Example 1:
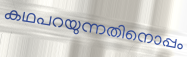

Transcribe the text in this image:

കഥപറയുന്നതിനൊപ്പം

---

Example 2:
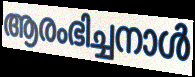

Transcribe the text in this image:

ആരംഭിച്ചനാൾ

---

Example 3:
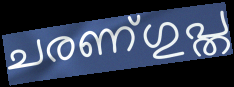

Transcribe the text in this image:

ചരണ്ഗുപ്ത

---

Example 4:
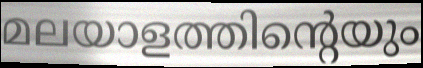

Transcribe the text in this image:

മലയാളത്തിന്റെയും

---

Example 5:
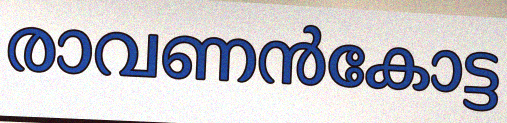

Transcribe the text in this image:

രാവണൻകോട്ട